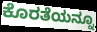
ಕೊರತೆಯನ್ನೂ